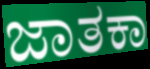
ಜಾತಕಾ